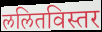
ललितविस्तर